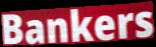
Bankers